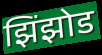
झिंझोड